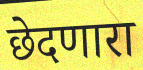
छेदणारा